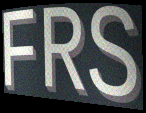
FRS